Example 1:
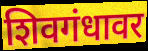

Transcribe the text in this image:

शिवगंधावर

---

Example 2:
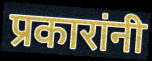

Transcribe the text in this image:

प्रकारांनी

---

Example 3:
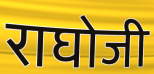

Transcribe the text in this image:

राघोजी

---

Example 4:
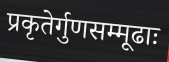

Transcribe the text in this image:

प्रकृतेर्गुणसम्मूढाः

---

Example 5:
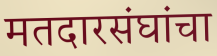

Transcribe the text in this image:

मतदारसंघांचा